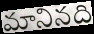
మానినది